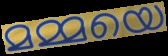
മമ്മയെ